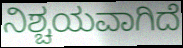
ನಿಶ್ಚಯವಾಗಿದೆ